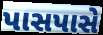
પાસપાસે